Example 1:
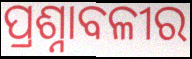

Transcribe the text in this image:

ପ୍ରଶ୍ନାବଳୀର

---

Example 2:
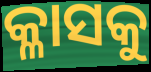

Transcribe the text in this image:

କ୍ଳାସକୁ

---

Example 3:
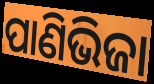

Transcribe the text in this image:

ପାଣିଭିଜା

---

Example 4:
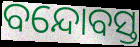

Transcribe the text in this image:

ବନ୍ଦୋବସ୍ତ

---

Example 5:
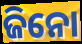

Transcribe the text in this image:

ଜିନୋ